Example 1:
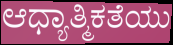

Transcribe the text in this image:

ಆಧ್ಯಾತ್ಮಿಕತೆಯು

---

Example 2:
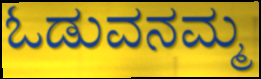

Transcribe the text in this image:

ಓಡುವನಮ್ಮ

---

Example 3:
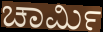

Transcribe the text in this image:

ಚಾರ್ಮಿ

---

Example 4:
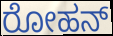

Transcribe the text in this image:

ರೋಹನ್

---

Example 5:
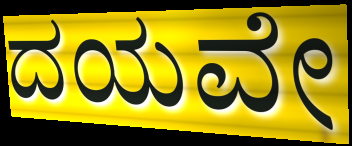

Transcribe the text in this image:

ದಯವೇ